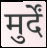
मुर्दें